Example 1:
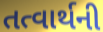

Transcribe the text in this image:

તત્વાર્થની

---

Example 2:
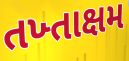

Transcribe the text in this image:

તખ્તાક્ષમ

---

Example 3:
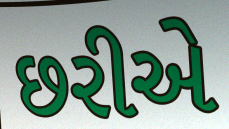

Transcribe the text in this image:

છરીએ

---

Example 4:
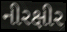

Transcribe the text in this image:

નીરક્ષીર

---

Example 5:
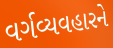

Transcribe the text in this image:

વર્ગવ્યવહારને